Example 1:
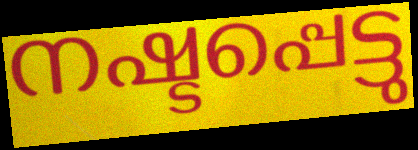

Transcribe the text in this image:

നഷ്ടപ്പെട്ടു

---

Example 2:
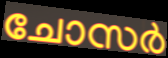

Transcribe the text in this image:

ചോസർ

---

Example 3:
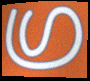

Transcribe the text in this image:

ഗ്ര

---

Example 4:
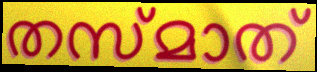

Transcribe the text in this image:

തസ്മാത്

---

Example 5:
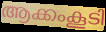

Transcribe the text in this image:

ആക്കംകൂടി